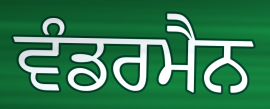
ਵੰਡਰਮੈਨ